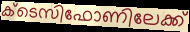
ക്ടെസിഫോണിലേക്ക്